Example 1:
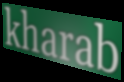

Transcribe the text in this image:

kharab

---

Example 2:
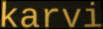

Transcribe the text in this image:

karvi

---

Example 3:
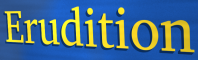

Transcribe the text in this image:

Erudition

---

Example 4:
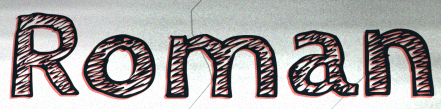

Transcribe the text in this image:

Roman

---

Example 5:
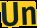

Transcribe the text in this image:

Un